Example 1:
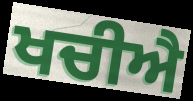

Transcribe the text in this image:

ਖਚੀਐ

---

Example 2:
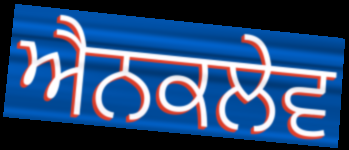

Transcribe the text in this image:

ਐਨਕਲੇਵ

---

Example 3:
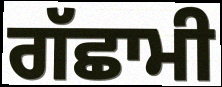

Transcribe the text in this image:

ਗੱਛਾਮੀ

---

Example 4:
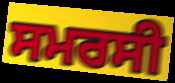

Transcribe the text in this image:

ਸਮਰਸੀ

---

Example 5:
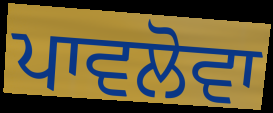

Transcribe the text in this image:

ਪਾਵਲੋਵਾ